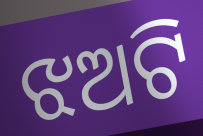
ଝଅଟି